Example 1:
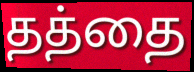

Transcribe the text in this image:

தத்தை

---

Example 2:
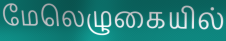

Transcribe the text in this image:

மேலெழுகையில்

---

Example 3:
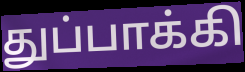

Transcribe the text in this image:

துப்பாக்கி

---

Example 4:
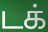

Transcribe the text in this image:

டக்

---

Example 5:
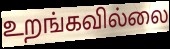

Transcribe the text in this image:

உறங்கவில்லை